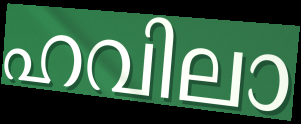
ഹവിലാ